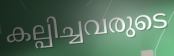
കല്പിച്ചവരുടെ